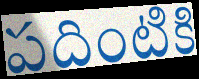
పదింటికి